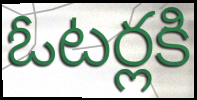
ఓటర్లకి